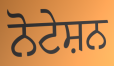
ਨੋਟੇਸ਼ਨ